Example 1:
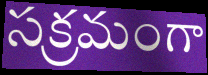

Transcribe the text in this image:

సక్రమంగా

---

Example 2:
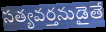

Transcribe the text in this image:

సత్యవర్తనుడైతే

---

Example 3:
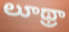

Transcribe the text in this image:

లూథ్రా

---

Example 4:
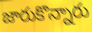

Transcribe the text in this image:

జారుకొన్నారు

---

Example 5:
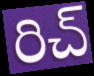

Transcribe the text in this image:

రిచ్